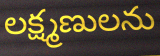
లక్ష్మణులను